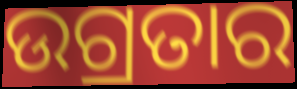
ଉଗ୍ରତାର